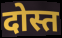
दोस्त